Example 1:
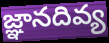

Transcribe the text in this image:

జ్ఞానదివ్య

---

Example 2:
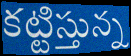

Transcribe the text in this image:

కట్టిస్తున్న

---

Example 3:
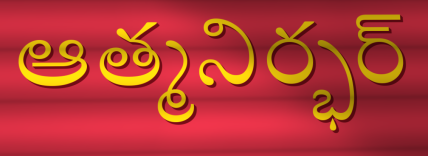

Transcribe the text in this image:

ఆత్మనిర్భర్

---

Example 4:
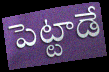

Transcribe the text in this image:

పెట్టాడే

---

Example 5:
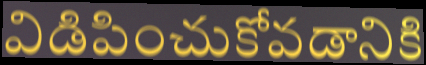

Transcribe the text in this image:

విడిపించుకోవడానికి